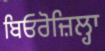
ਬਿਓਰੋਜ਼ਿਲ੍ਹਾ